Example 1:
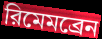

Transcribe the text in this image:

রিমেমব্রেন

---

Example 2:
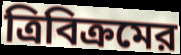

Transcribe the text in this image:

ত্রিবিক্রমের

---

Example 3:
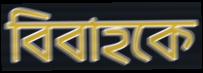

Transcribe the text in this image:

বিবাহকে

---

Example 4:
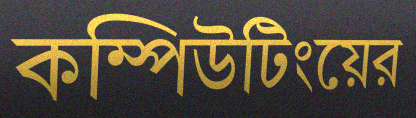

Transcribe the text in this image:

কম্পিউটিংয়ের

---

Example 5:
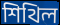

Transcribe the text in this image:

শিথিল